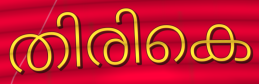
തിരികെ